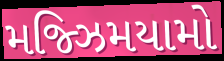
મજ્ઝિમયામો